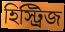
হিস্ট্রিজ